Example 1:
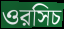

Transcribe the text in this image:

ওরসিচ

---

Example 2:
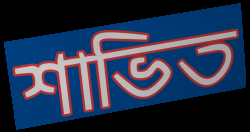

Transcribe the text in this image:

শাভিত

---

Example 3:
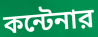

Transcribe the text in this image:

কন্টেনার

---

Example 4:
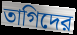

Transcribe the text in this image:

তাগিদের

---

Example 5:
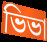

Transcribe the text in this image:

ভিভা